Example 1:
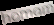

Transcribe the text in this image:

homam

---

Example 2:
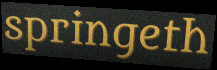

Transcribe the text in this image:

springeth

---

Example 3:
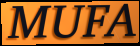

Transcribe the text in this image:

MUFA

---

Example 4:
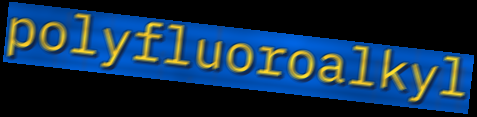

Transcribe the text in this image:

polyfluoroalkyl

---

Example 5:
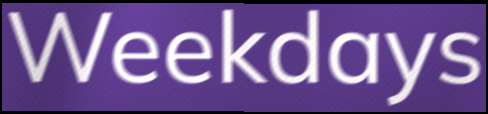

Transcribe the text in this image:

Weekdays